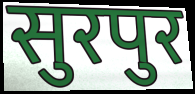
सुरपुर